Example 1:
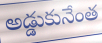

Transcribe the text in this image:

అడ్డుకునేంత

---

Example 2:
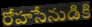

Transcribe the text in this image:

రోహసేనుడికి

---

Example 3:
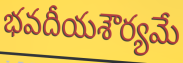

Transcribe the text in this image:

భవదీయశౌర్యమే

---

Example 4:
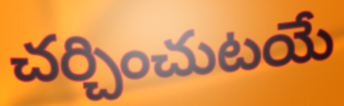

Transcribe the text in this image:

చర్చించుటయే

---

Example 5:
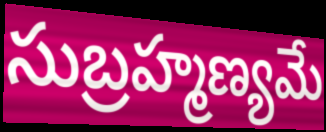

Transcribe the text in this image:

సుబ్రహ్మణ్యమే